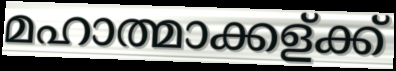
മഹാത്മാക്കള്ക്ക്